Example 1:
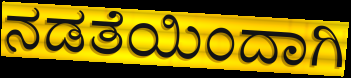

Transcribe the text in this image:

ನಡತೆಯಿಂದಾಗಿ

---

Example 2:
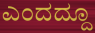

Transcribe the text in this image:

ಎಂದದ್ದೂ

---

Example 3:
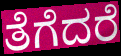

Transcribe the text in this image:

ತೆಗೆದರೆ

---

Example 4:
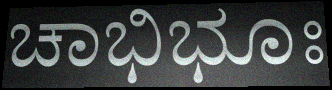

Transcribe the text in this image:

ಚಾಭಿಭೂಃ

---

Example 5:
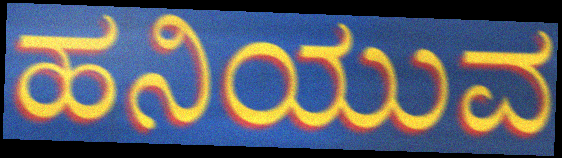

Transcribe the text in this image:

ಹನಿಯುವ